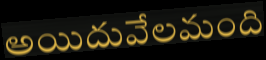
అయిదువేలమంది